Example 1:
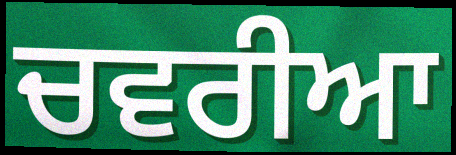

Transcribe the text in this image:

ਚਵਰੀਆ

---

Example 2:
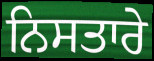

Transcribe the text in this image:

ਨਿਸਤਾਰੇ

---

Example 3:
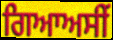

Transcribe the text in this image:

ਗਿਆਅਸੀਂ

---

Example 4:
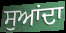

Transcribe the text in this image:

ਸੁਆਂਦਾ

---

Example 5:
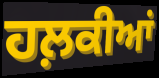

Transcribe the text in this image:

ਹਲ਼ਕੀਆਂ